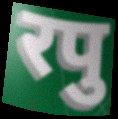
रपु